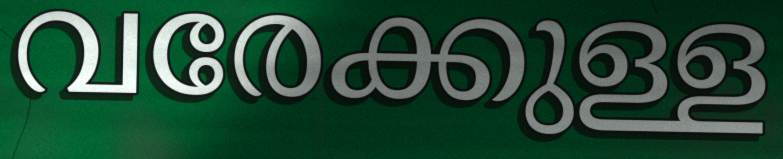
വരേക്കുള്ള